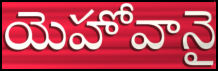
యెహోవానై